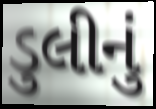
ડુલીનું